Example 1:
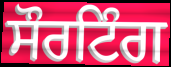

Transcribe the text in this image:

ਸੌਰਟਿੰਗ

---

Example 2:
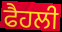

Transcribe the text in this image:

ਫੈਹਲੀ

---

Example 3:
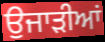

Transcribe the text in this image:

ਉਜਾੜੀਆਂ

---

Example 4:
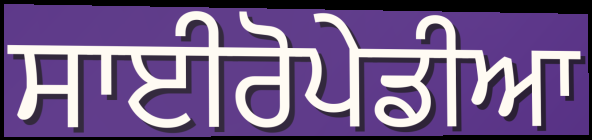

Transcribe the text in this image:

ਸਾਈਰੋਪੇਡੀਆ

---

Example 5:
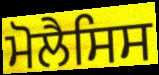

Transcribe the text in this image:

ਮੋਲੈਸਿਸ